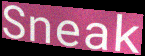
Sneak